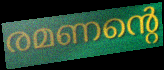
രമണന്റെ